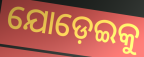
ଯୋଡ଼େଇକୁ